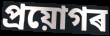
প্ৰয়োগৰ